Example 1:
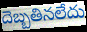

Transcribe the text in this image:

దెబ్బతినలేదు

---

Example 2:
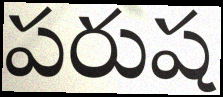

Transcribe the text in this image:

పరుష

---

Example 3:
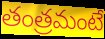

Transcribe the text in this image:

తంత్రమంటే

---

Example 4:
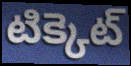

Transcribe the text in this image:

టిక్కెట్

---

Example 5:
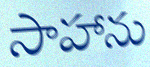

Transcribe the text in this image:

సాహాను